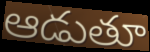
ఆడుతూ